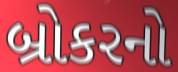
બ્રોકરનો